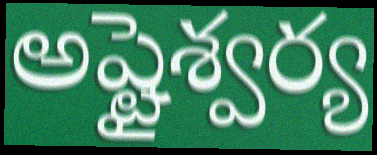
అష్టైశ్వర్య